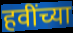
हवींच्या